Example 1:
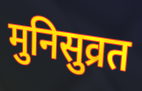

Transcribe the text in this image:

मुनिसुव्रत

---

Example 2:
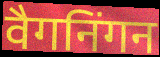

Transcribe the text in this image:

वैगनिंगन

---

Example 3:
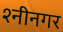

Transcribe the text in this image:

श्नीनगर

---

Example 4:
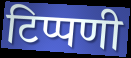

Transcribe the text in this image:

टिप्पणी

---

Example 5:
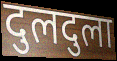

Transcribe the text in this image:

दुलदुला